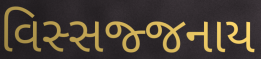
વિસ્સજ્જનાય